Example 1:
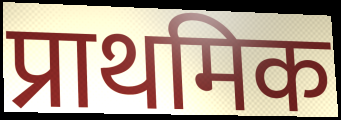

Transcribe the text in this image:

प्राथमिक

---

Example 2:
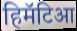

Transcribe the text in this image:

हिमॅटिआ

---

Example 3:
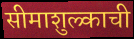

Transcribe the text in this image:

सीमाशुल्काची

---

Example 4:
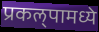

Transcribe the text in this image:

प्रकल्पामध्ये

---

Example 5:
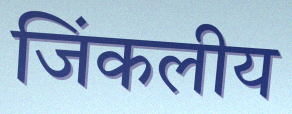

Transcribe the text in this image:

जिंकलीय